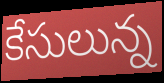
కేసులున్న